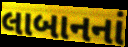
લાબાનનાં